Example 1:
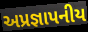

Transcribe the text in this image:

અપ્રજ્ઞાપનીય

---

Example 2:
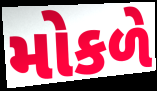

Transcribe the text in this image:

મોકળે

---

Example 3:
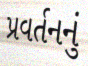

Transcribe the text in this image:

પ્રવર્તનનું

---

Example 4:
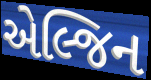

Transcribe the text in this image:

એલ્જિન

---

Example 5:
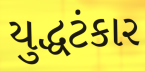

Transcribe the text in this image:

યુદ્ધટંકાર